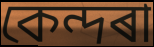
কেন্দৰা